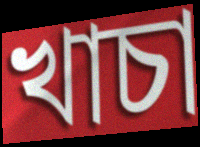
খাচা